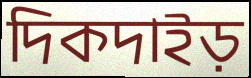
দিকদাইড়